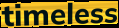
timeless